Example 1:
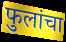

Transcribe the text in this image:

फुलांचा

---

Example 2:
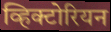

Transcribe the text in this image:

व्हिक्टोरियन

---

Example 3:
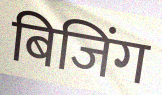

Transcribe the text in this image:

बिजिंग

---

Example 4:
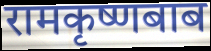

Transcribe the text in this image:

रामकृष्णबाब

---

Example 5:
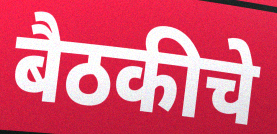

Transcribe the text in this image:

बैठकीचे